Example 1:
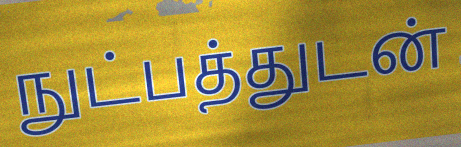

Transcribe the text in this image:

நுட்பத்துடன்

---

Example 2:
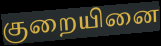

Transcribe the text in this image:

குறையினை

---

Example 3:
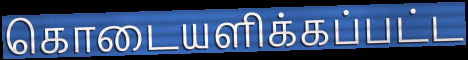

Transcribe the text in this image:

கொடையளிக்கப்பட்ட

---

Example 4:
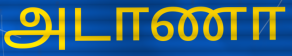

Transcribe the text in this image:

அடாணா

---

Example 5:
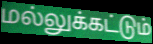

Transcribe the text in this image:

மல்லுக்கட்டும்